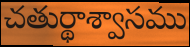
చతుర్థాశ్వాసము